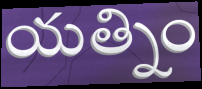
యత్నిం